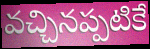
వచ్చినప్పటికే